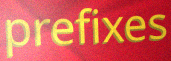
prefixes